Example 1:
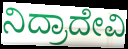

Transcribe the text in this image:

ನಿದ್ರಾದೇವಿ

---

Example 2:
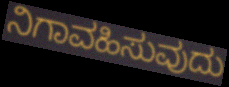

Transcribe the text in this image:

ನಿಗಾವಹಿಸುವುದು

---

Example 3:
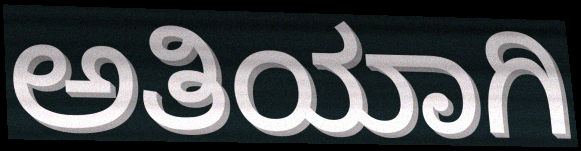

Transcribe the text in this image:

ಅತಿಯಾಗಿ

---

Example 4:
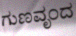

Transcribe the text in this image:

ಗುಣವೃಂದ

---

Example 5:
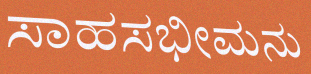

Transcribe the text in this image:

ಸಾಹಸಭೀಮನು